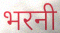
भरनी